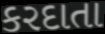
કરદાતા